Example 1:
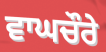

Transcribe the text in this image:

ਵਾਘਚੌਰੇ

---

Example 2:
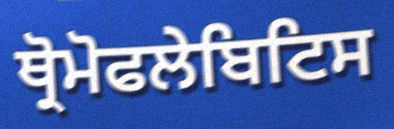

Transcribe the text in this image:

ਥ੍ਰੋਮੋਫਲੇਬਿਟਿਸ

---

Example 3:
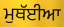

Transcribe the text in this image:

ਮੁਥੱਈਆ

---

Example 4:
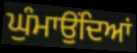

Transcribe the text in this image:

ਘੁੰਮਾਉਂਦਿਆਂ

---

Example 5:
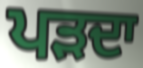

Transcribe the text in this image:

ਪੜਦਾ